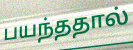
பயந்ததால்